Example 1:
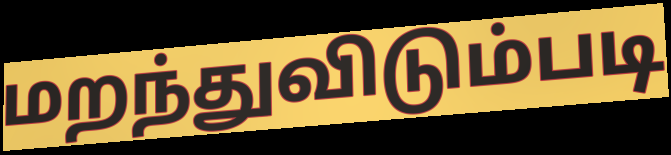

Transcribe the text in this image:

மறந்துவிடும்படி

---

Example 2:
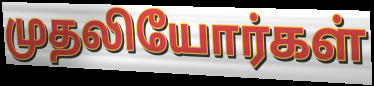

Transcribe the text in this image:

முதலியோர்கள்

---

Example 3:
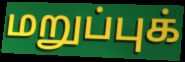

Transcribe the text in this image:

மறுப்புக்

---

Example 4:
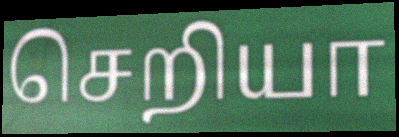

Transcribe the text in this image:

செறியா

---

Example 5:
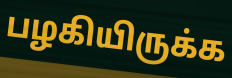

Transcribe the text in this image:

பழகியிருக்க